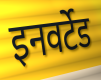
इनवर्टेड